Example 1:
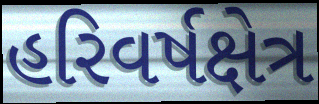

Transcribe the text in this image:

હરિવર્ષક્ષેત્ર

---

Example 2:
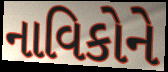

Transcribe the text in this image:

નાવિકોને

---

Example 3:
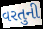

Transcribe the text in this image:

વરતુની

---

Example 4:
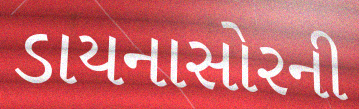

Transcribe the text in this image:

ડાયનાસોરની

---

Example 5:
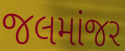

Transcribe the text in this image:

જલમાંજર